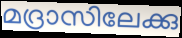
മദ്രാസിലേക്കു